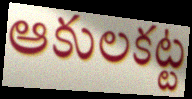
ఆకులకట్ట